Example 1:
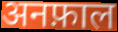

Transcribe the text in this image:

अनफ़ाल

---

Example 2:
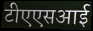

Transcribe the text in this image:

टीएएसआई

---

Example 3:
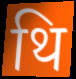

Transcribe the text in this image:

थि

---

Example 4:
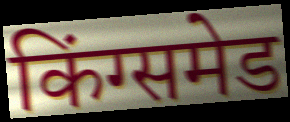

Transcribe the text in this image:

किंग्समेड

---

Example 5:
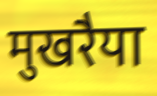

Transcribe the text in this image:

मुखरैया